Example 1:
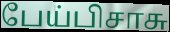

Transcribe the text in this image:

பேய்பிசாசு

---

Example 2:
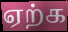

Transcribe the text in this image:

ஏற்க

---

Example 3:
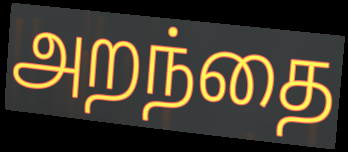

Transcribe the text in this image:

அறந்தை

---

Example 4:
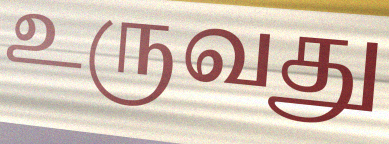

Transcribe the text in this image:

உருவது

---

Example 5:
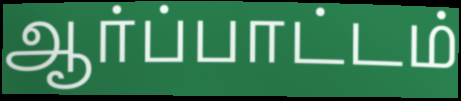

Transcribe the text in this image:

ஆர்ப்பாட்டம்